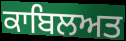
ਕਾਬਿਲਅਤ